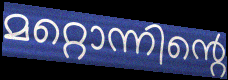
മറ്റൊന്നിന്റെ